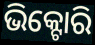
ଭିକ୍ଟୋରି